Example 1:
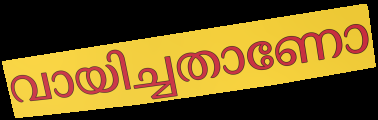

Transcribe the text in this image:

വായിച്ചതാണോ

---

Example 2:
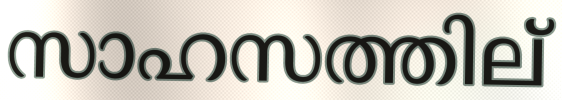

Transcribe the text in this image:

സാഹസത്തില്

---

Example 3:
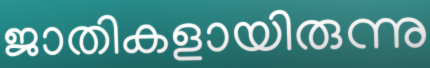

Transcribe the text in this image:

ജാതികളായിരുന്നു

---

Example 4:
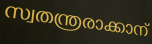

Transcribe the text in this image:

സ്വതന്ത്രരാക്കാന്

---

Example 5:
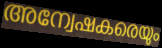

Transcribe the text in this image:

അന്വേഷകരെയും